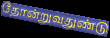
தோன்றுவதுண்டு